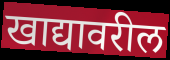
खाद्यावरील